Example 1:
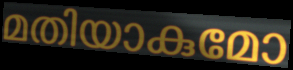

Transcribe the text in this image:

മതിയാകുമോ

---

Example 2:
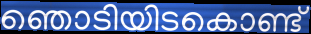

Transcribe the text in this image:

ഞൊടിയിടകൊണ്ട്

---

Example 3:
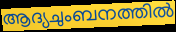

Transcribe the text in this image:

ആദ്യചുംബനത്തിൽ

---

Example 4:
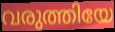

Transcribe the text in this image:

വരുത്തിയേ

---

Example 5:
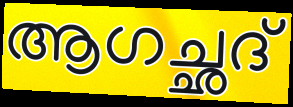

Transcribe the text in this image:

ആഗച്ഛദ്